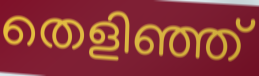
തെളിഞ്ഞ്